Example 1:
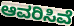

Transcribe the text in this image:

ಆವರಿಸಿವೆ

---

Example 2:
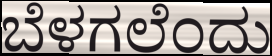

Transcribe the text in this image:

ಬೆಳಗಲೆಂದು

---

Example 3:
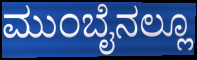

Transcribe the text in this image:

ಮುಂಬೈನಲ್ಲೂ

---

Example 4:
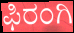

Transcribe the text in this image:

ಫಿರಂಗಿ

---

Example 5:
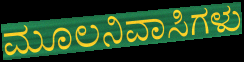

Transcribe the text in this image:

ಮೂಲನಿವಾಸಿಗಳು